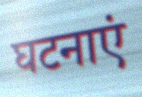
घटनाएं